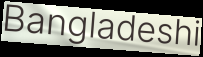
Bangladeshi